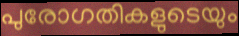
പുരോഗതികളുടെയും